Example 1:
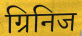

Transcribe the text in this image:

ग्रिनिज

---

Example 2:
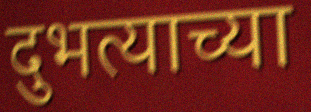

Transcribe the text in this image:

दुभत्याच्या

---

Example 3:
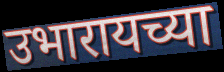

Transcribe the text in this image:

उभारायच्या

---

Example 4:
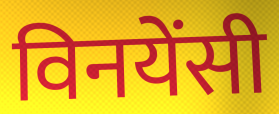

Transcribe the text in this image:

विनयेंसी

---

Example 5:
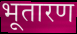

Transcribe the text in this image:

भूतारण